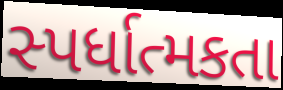
સ્પર્ધાત્મકતા